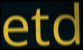
etd